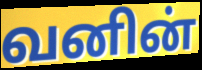
வனின்